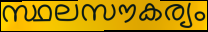
സ്ഥലസൗകര്യം